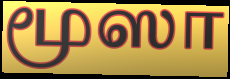
மூஸா